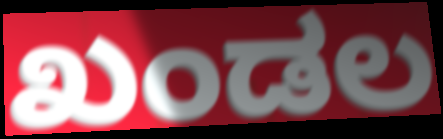
ಖಂಡಲ